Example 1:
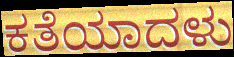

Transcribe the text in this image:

ಕತೆಯಾದಳು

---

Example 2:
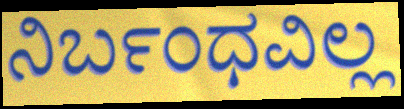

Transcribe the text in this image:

ನಿರ್ಬಂಧವಿಲ್ಲ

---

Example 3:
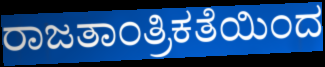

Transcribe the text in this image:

ರಾಜತಾಂತ್ರಿಕತೆಯಿಂದ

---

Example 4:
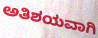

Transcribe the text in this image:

ಅತಿಶಯವಾಗಿ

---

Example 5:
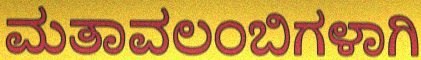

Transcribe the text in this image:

ಮತಾವಲಂಬಿಗಳಾಗಿ